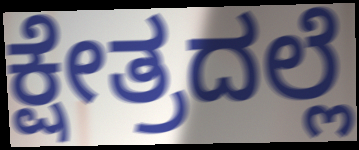
ಕ್ಷೇತ್ರದಲ್ಲೆ